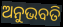
ଅନୁଭବତି